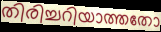
തിരിച്ചറിയാത്തതോ